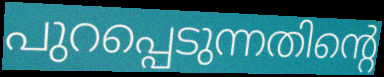
പുറപ്പെടുന്നതിന്റെ